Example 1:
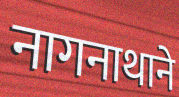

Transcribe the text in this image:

नागनाथाने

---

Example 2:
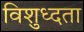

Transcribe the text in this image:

विशुध्दता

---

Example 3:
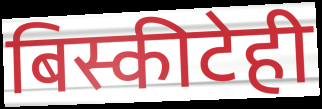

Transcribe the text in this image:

बिस्कीटेही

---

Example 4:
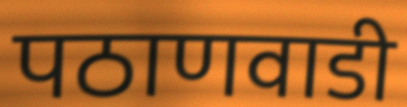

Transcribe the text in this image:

पठाणवाडी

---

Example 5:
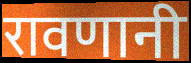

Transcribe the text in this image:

रावणानी